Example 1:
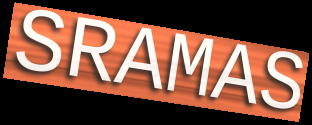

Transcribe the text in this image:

SRAMAS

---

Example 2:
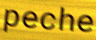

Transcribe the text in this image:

peche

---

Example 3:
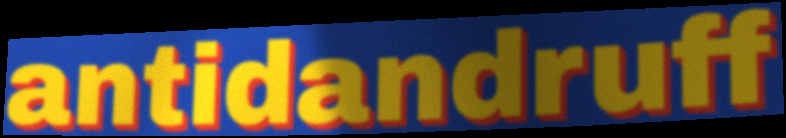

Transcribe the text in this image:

antidandruff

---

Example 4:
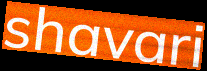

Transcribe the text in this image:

shavari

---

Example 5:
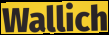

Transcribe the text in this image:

Wallich